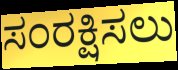
ಸಂರಕ್ಷಿಸಲು